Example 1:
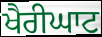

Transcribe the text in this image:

ਖੈਰੀਘਾਟ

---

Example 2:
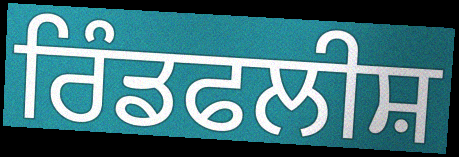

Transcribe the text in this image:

ਰਿੰਡਫਲੀਸ਼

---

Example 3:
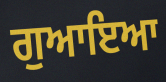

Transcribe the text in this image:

ਗੁਆਇਆ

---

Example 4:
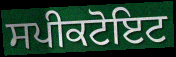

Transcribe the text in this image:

ਸਪੀਕਟੋਇਟ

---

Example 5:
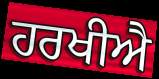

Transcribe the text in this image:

ਹਰਖੀਐ